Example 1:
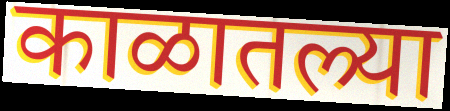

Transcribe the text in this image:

काळातल्या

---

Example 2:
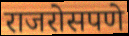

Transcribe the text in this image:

राजरोसपणे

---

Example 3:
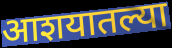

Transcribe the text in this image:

आशयातल्या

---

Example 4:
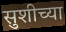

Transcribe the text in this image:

सुशीच्या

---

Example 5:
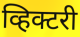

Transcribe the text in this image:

व्हिक्टरी